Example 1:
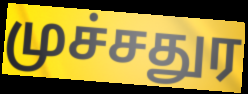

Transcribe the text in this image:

முச்சதுர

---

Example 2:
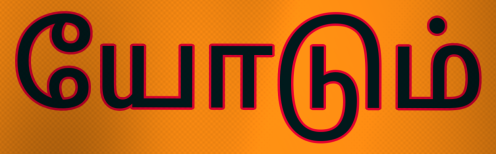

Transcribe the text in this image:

யோடும்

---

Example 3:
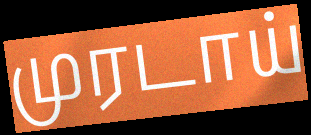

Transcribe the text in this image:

முரடாய்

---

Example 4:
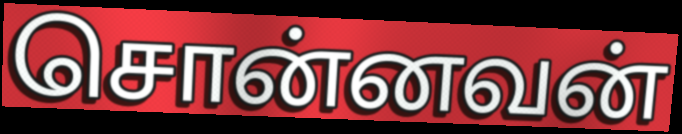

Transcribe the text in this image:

சொன்னவன்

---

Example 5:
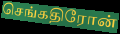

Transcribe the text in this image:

செங்கதிரோன்